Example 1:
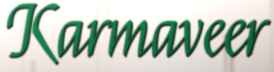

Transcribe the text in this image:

Karmaveer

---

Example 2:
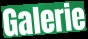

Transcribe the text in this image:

Galerie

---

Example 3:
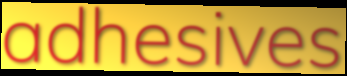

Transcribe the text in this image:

adhesives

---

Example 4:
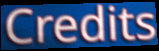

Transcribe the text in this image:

Credits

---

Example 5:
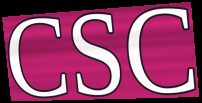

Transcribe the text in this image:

CSC